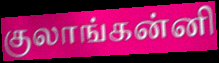
குலாங்கன்னி